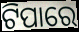
ଟିପାରେ